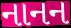
નાનન